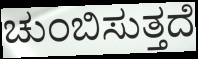
ಚುಂಬಿಸುತ್ತದೆ